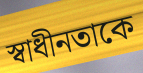
স্বাধীনতাকে